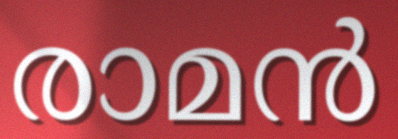
രാമൻ